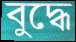
বুদ্ধে